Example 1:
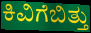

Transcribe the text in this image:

ಕಿವಿಗೆಬಿತ್ತು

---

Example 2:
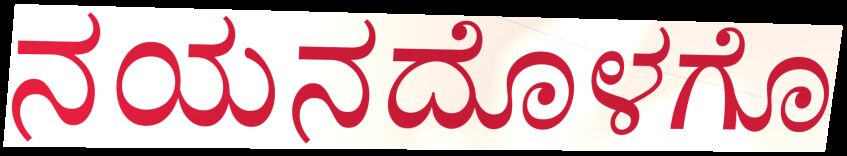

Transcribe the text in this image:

ನಯನದೊಳಗೊ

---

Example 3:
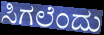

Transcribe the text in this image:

ಸಿಗಲೆಂದು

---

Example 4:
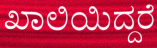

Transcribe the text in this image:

ಖಾಲಿಯಿದ್ದರೆ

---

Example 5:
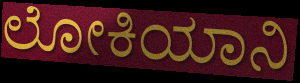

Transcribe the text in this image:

ಲೋಕಿಯಾನಿ